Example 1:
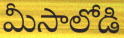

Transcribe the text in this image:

మీసాలోడి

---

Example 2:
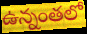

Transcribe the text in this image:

ఉన్నంతలో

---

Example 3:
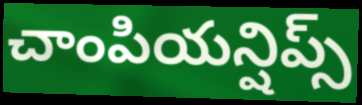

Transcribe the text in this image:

చాంపియన్షిప్స్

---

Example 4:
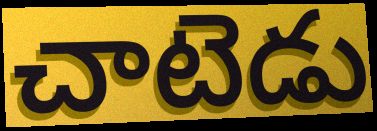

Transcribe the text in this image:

చాటెడు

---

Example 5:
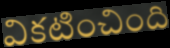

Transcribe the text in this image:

వికటించింది